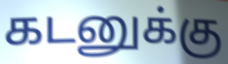
கடனுக்கு